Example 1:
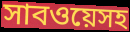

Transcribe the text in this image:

সাবওয়েসহ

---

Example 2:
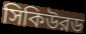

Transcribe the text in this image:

সিকিউরড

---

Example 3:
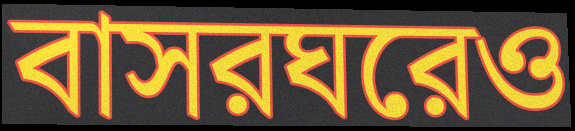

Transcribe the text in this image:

বাসরঘরেও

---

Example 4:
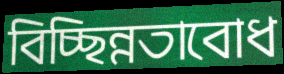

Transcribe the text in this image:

বিচ্ছিন্নতাবোধ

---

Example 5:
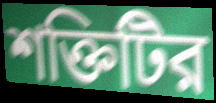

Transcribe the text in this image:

শক্তিটির